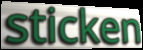
sticken